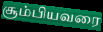
சூம்பியவரை